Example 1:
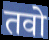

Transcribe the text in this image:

तवो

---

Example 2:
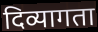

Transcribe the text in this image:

दिव्यागता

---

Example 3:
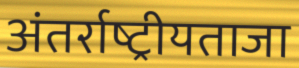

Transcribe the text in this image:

अंतर्राष्ट्रीयताजा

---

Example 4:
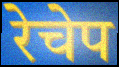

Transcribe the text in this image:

रेचेप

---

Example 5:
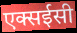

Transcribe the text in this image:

एक्सईसी